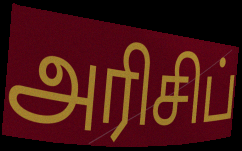
அரிசிப்